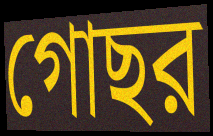
গোছর